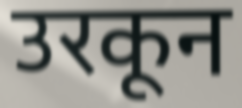
उरकून